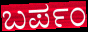
ಬರ್ಪಂ